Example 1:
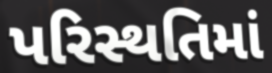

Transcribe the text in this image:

પરિસ્થતિમાં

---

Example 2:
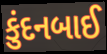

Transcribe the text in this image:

કુંદનબાઈ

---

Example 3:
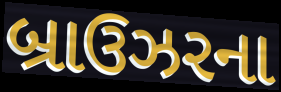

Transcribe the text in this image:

બ્રાઉઝરના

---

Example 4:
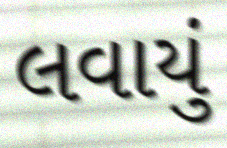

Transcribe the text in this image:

લવાયું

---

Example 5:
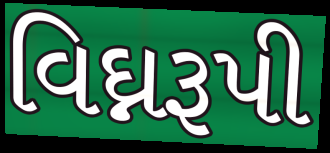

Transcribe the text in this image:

વિઘ્નરૂપી